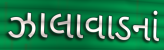
ઝાલાવાડનાં